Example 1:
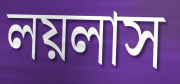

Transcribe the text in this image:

লয়লাস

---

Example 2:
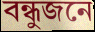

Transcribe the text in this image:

বন্ধুজনে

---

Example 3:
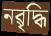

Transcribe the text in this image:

নৱৃদ্ধি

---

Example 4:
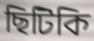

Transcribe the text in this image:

ছিটিকি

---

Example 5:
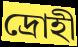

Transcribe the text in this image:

দ্ৰোহী